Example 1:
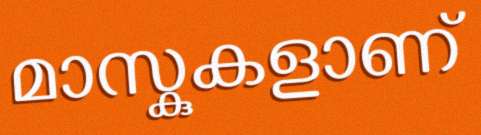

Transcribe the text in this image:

മാസ്കുകളാണ്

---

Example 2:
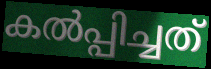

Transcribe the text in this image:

കൽപ്പിച്ചത്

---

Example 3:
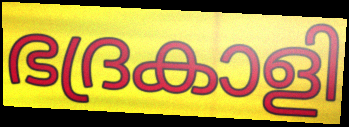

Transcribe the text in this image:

ഭദ്രകാളി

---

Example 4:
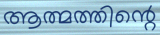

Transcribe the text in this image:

ആത്മത്തിന്റെ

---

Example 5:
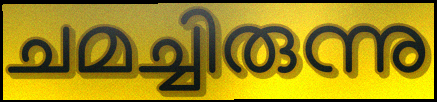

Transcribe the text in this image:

ചമച്ചിരുന്നു